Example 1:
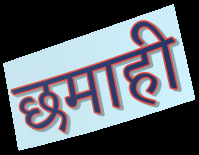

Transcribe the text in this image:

छमाही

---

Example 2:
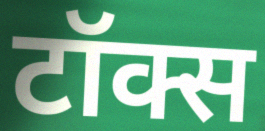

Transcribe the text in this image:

टॉक्स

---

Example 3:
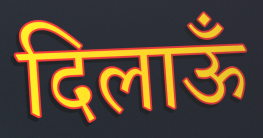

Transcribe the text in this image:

दिलाऊँ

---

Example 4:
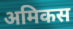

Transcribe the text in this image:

अमिकस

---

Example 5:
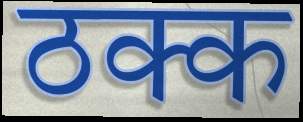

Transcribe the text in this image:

ठक्क